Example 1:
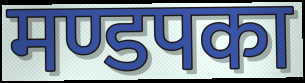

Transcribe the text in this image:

मण्डपका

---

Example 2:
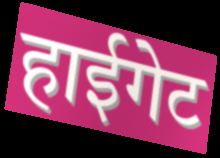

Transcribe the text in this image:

हाईगेट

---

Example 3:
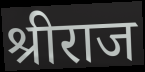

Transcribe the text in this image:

श्रीराज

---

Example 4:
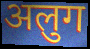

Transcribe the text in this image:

अलुग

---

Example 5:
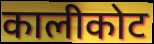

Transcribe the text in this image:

कालीकोट